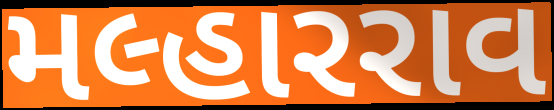
મલ્હારરાવ